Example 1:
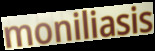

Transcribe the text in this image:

moniliasis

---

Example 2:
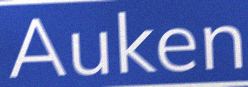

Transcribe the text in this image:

Auken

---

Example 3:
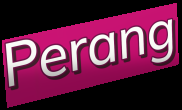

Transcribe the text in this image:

Perang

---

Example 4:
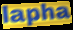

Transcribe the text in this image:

lapha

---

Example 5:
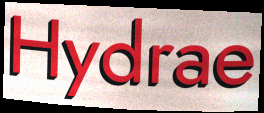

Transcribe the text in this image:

Hydrae